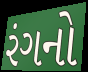
રંગનો